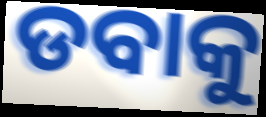
ଡବାକୁ